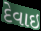
દેવાઇ